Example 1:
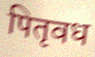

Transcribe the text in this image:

पितृवध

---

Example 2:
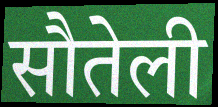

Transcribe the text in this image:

सौतेली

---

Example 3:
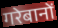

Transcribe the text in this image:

गरेबानों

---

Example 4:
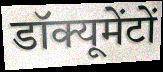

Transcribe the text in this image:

डॉक्यूमेंटों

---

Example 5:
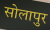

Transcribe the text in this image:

सोलापुर